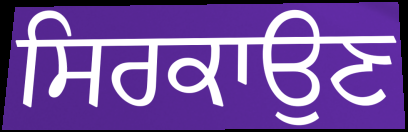
ਸਿਰਕਾਉਣ